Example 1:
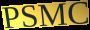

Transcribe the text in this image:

PSMC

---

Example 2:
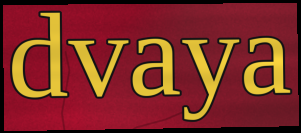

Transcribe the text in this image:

dvaya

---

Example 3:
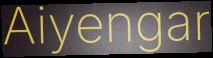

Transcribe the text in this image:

Aiyengar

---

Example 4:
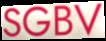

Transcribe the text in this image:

SGBV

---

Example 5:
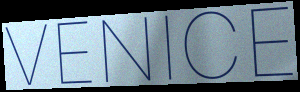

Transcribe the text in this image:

VENICE